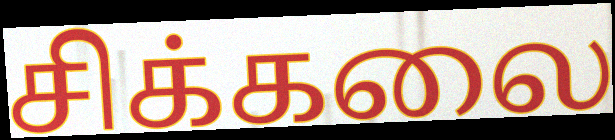
சிக்கலை